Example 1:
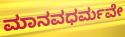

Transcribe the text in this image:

ಮಾನವಧರ್ಮವೇ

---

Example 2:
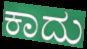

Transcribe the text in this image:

ಕಾದು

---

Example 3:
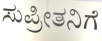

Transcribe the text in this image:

ಸುಪ್ರೀತನಿಗೆ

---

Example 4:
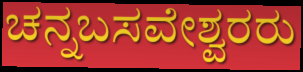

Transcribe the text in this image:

ಚನ್ನಬಸವೇಶ್ವರರು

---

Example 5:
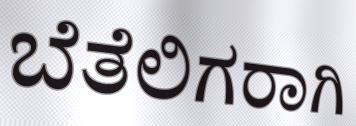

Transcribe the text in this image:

ಬೆತೆಲಿಗರಾಗಿ